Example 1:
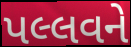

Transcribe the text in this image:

પલ્લવને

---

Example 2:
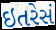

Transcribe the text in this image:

ઇતરેસં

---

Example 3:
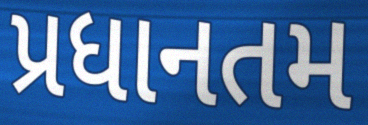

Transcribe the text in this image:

પ્રધાનતમ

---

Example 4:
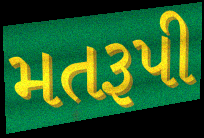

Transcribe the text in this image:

મતરૂપી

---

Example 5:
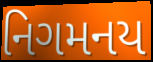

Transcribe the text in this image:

નિગમનય